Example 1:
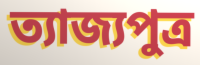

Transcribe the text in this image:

ত্যাজ্যপুত্র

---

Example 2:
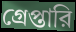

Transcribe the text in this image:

গ্রেপ্তারি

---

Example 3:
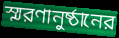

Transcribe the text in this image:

স্মরণানুষ্ঠানের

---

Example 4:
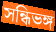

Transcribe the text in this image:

সন্ধিভঙ্গ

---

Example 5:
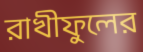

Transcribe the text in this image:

রাখীফুলের